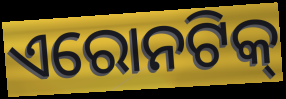
ଏରୋନଟିକ୍